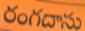
రంగదాసు